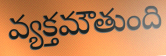
వ్యక్తమౌతుంది